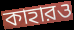
কাহারও